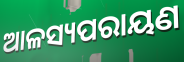
ଆଳସ୍ୟପରାୟଣ